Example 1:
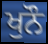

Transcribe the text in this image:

ਖੁਨੌ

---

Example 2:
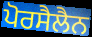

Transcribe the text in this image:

ਪੋਰਸੈਲੈਨ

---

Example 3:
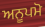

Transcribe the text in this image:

ਅਨੂਪਮੋ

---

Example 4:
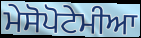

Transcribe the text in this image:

ਮੇਸੋਪੋਟੇਮੀਆ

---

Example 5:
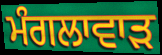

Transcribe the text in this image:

ਮੰਗਲਾਵਾੜ